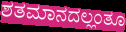
ಶತಮಾನದಲ್ಲಂತೂ